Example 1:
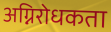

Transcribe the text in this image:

अग्निरोधकता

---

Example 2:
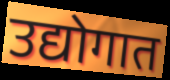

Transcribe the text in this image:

उद्योगात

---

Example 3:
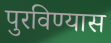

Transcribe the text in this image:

पुरविण्यास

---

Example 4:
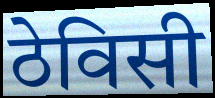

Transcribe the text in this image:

ठेविसी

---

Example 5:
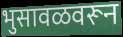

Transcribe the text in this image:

भुसावळवरून